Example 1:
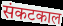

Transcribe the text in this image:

संकटकाल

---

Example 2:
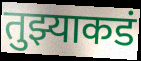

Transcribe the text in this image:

तुझ्याकडं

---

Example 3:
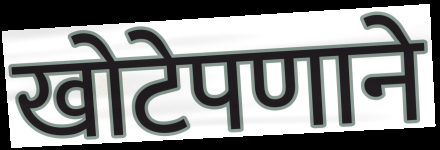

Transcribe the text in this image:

खोटेपणाने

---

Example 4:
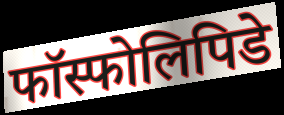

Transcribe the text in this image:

फॉस्फोलिपिडे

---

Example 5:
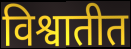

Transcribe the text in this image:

विश्वातीत